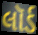
લૉર્ડ